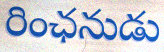
రింఛనుడు